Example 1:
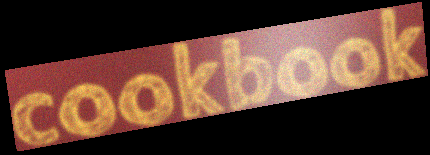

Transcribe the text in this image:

cookbook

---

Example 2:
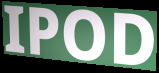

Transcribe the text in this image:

IPOD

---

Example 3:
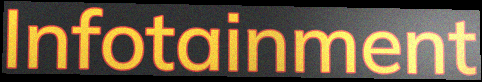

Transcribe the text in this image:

Infotainment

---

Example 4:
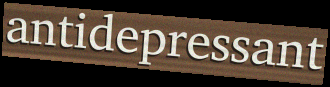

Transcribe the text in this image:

antidepressant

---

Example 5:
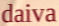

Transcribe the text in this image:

daiva